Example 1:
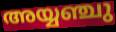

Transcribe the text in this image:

അയ്യഞ്ചു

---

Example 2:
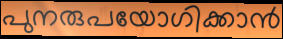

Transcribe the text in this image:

പുനരുപയോഗിക്കാൻ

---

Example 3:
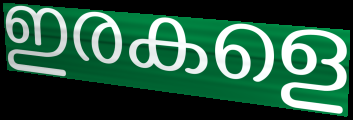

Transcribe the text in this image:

ഇരകളെ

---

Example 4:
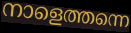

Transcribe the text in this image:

നാളെത്തന്നെ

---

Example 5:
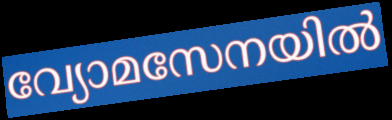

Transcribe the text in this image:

വ്യോമസേനയിൽ